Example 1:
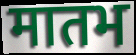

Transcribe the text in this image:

मातभ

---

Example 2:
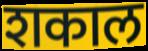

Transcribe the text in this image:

शकाल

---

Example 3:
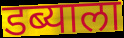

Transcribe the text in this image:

डब्याला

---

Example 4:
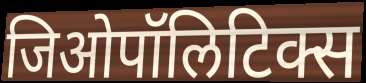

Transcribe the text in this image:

जिओपॉलिटिक्स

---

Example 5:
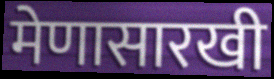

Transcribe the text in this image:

मेणासारखी